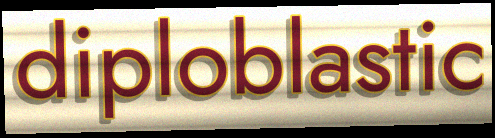
diploblastic